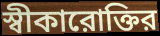
স্বীকারোক্তির